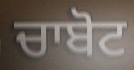
ਚਾਬੋਟ